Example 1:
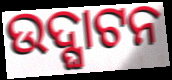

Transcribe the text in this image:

ଉଦ୍ଘାଟନ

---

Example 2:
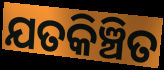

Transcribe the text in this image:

ଯତକିଞ୍ଚିତ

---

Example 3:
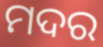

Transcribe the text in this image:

ମଦର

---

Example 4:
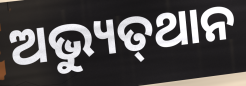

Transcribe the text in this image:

ଅଭ୍ୟୁତ୍‌ଥାନ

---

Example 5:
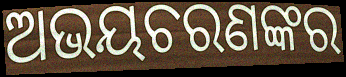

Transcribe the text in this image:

ଅଭୟଚରଣଙ୍କର